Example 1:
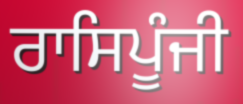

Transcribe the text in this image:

ਰਾਸਿਪੂੰਜੀ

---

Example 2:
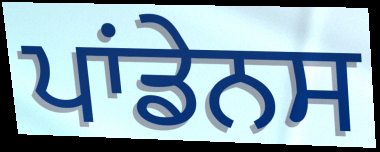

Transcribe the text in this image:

ਪਾਂਡੇਨਸ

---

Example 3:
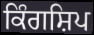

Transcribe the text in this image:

ਕਿੰਗਸ਼ਿਪ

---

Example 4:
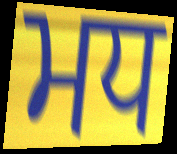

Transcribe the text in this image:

ਮਧ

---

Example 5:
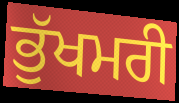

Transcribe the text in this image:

ਭੁੱਖਮਰੀ